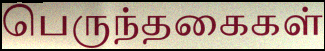
பெருந்தகைகள்